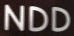
NDD